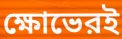
ক্ষোভেরই